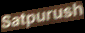
Satpurush